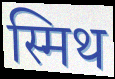
स्मिथ